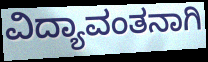
ವಿದ್ಯಾವಂತನಾಗಿ